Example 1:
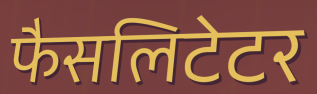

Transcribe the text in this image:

फैसलिटेटर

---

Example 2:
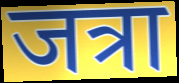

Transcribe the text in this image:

जत्रा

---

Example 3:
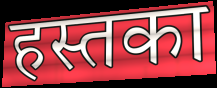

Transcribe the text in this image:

हस्तका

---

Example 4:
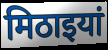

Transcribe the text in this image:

मिठाइयां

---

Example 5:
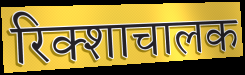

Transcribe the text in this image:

रिक्शाचालक